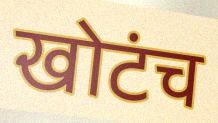
खोटंच